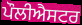
ਪੌਲੀਐਸਟਰ